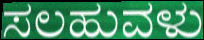
ಸಲಹುವಳು